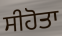
ਸੀਹੋਤਾ